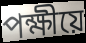
পক্ষীয়ে